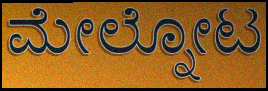
ಮೇಲ್ನೋಟ